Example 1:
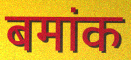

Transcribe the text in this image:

बमांक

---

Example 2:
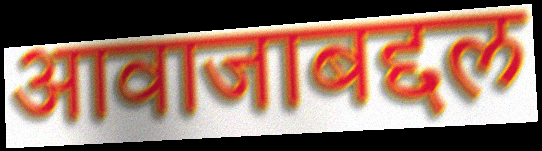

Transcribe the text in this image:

आवाजाबद्दल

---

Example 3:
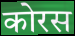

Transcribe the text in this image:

कोरस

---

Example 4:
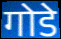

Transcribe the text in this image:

गोडे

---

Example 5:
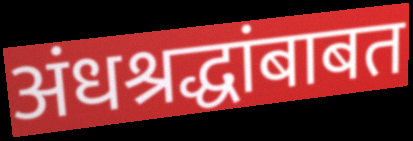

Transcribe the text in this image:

अंधश्रद्धांबाबत